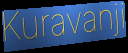
Kuravanji